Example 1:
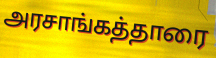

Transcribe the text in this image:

அரசாங்கத்தாரை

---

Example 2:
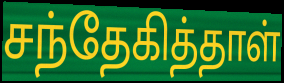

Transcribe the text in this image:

சந்தேகித்தாள்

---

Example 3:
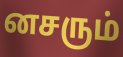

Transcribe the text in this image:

னசரும்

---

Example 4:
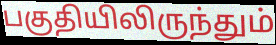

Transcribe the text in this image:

பகுதியிலிருந்தும்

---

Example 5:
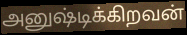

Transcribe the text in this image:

அனுஷ்டிக்கிறவன்